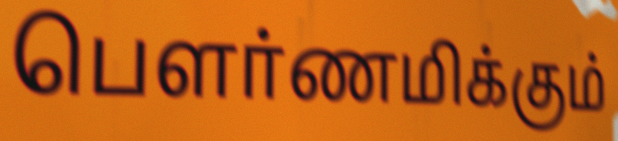
பௌர்ணமிக்கும்